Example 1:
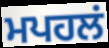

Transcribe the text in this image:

ਮਪਹਲਂ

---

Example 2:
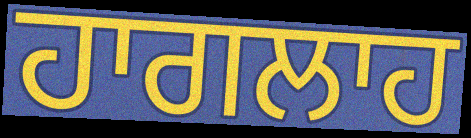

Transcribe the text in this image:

ਹਾਗਲਾਹ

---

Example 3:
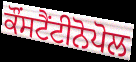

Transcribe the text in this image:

ਕੌਂਸਟੈਂਟੀਨੋਪੋਲ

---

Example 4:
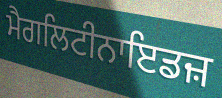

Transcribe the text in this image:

ਮੈਗਲਿਟੀਨਾਇਡਜ਼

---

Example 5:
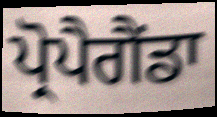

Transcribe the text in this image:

ਪ੍ਰੋਪੈਗੈਂਡਾ